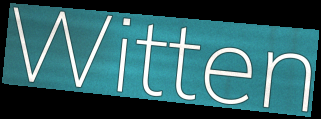
Witten